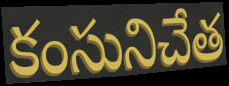
కంసునిచేత